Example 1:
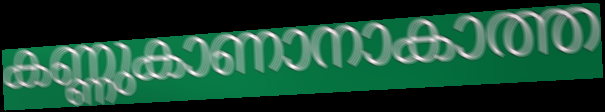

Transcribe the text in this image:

കണ്ണുകാണാനാകാത്ത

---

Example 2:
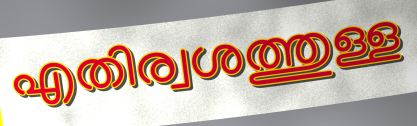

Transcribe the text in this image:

എതിര്വശത്തുള്ള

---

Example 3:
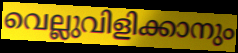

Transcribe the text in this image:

വെല്ലുവിളിക്കാനും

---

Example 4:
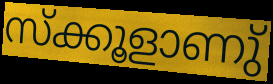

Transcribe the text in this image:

സ്ക്കൂളാണു്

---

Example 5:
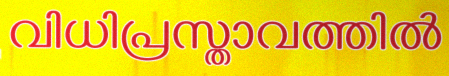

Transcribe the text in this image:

വിധിപ്രസ്താവത്തിൽ